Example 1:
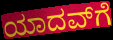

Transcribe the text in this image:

ಯಾದವ್‌ಗೆ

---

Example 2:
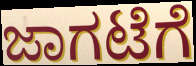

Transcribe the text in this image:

ಜಾಗಟೆಗೆ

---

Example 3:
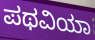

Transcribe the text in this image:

ಪಥವಿಯಾ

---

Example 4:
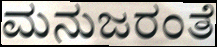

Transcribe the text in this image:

ಮನುಜರಂತೆ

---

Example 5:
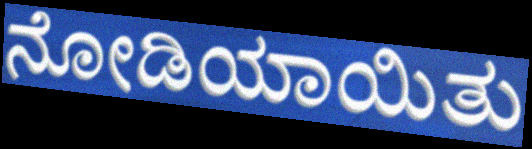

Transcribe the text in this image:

ನೋಡಿಯಾಯಿತು